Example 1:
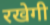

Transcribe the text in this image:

रखेगी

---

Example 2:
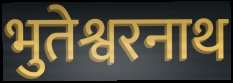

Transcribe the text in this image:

भुतेश्वरनाथ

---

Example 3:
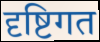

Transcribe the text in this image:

दृष्टिगत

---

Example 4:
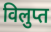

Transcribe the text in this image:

विलुप्त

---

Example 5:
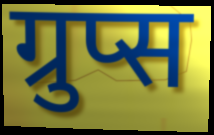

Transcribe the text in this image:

ग्रुप्स